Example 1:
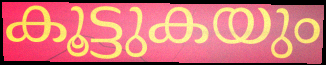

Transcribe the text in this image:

കൂട്ടുകയും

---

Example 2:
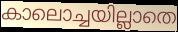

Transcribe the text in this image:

കാലൊച്ചയില്ലാതെ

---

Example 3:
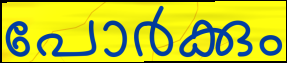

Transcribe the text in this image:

പോർക്കും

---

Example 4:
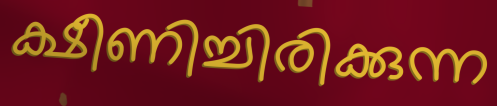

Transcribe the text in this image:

ക്ഷീണിച്ചിരിക്കുന്ന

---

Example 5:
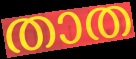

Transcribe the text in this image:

താത